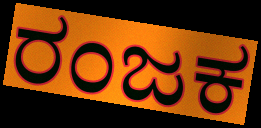
ರಂಜಕ